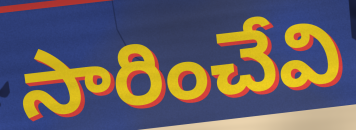
సారించేవి